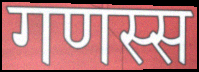
गणस्स